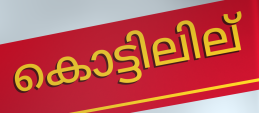
കൊട്ടിലില്